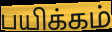
பயிக்கம்